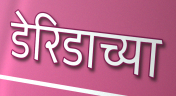
डेरिडाच्या